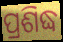
ପ୍ରଶିଦ୍ଧ